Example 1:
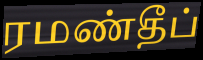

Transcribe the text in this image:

ரமண்தீப்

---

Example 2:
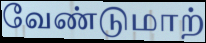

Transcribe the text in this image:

வேண்டுமாற்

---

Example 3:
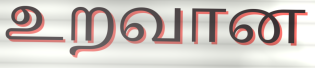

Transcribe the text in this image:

உறவான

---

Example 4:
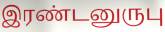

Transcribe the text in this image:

இரண்டனுருபு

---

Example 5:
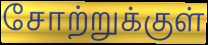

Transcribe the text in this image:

சோற்றுக்குள்